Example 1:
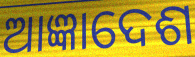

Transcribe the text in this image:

ଆଜ୍ଞାଦେଶ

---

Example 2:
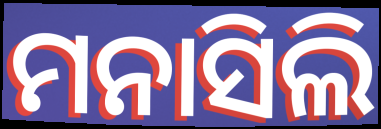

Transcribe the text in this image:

ମନାସିଲି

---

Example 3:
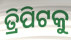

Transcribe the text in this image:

ତ୍ରିପିଟକୁ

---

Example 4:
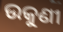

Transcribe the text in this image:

ଉକୁଣୀ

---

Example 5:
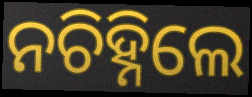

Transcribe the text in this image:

ନଚିହ୍ନିଲେ